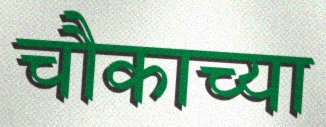
चौकाच्या